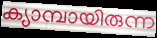
ക്യാമ്പായിരുന്ന